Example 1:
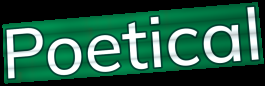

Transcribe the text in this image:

Poetical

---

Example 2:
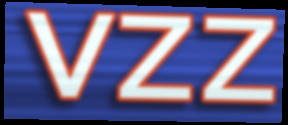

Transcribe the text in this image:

vzz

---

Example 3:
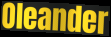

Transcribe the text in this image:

Oleander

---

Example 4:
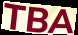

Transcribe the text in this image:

TBA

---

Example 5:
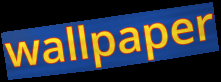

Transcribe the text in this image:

wallpaper